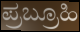
ಪ್ರಬ್ರೂಹಿ